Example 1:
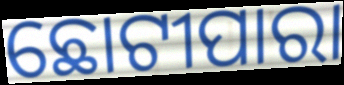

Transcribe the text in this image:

ଛୋଟୀପାରା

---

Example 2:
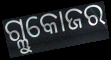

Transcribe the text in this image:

ଗ୍ଲୁକୋଜର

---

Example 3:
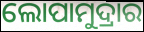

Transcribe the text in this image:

ଲୋପାମୁଦ୍ରାର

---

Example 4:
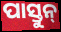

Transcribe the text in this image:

ପାସ୍ତୁନ୍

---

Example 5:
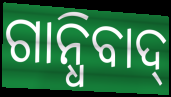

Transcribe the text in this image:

ଗାନ୍ଧିବାଦ୍